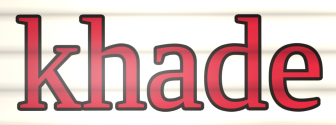
khade